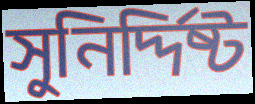
সুনির্দ্দিষ্ট